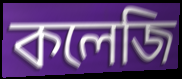
কলেজি